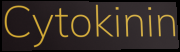
Cytokinin